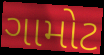
ગામોટ